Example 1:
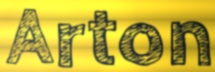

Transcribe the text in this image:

Arton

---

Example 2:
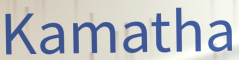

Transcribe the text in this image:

Kamatha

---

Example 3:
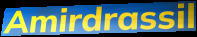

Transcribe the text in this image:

Amirdrassil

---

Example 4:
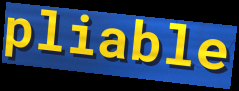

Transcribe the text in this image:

pliable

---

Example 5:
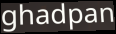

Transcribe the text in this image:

ghadpan